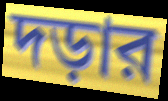
দড়ার